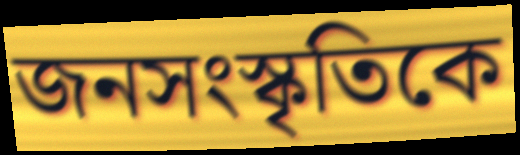
জনসংস্কৃতিকে